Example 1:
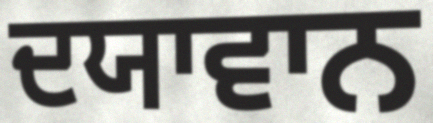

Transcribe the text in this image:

ਦਯਾਵਾਨ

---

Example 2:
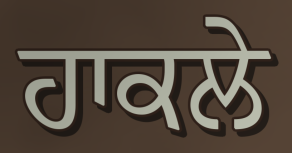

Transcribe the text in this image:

ਹਾਕਲੇ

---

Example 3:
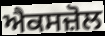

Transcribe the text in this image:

ਐਕਸਜ਼ੋਲ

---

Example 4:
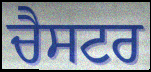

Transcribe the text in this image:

ਚੈਸਟਰ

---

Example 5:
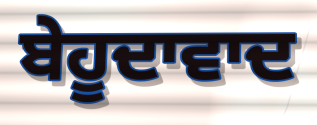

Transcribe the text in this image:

ਬੇਹੂਦਾਵਾਦ